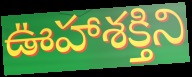
ఊహాశక్తిని